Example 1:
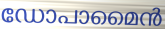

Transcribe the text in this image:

ഡോപാമൈൻ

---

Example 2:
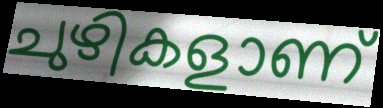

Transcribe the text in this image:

ചുഴികളാണ്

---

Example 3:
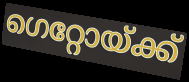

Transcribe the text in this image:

ഗെറ്റോയ്ക്ക്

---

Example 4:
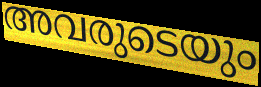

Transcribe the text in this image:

അവരുടെയും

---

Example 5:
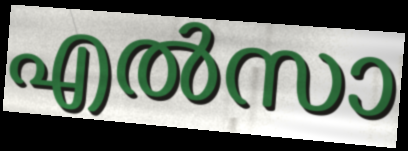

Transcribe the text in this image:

എൽസാ